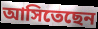
আসিতেছেন